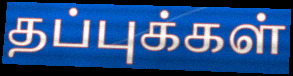
தப்புக்கள்